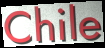
Chile